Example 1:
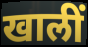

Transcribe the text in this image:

खालीं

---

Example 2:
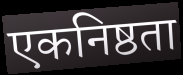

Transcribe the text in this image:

एकनिष्ठता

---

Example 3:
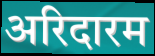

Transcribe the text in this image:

अरिदारम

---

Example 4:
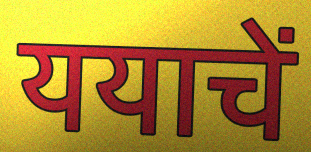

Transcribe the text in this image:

ययाचें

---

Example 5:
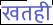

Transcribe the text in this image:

खतही